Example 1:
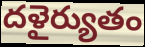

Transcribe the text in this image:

దళైర్యుతం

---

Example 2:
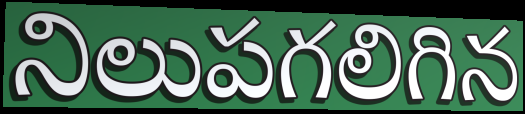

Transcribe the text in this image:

నిలుపగలిగిన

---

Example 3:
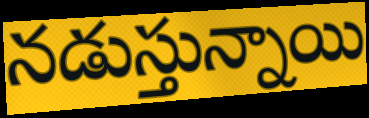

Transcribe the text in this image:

నడుస్తున్నాయి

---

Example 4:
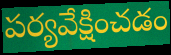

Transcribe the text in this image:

పర్యవేక్షించడం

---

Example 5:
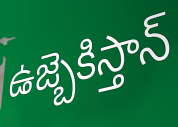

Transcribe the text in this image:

ఉజ్బెకిస్తాన్